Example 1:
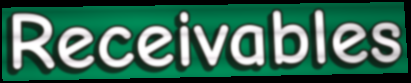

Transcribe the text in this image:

Receivables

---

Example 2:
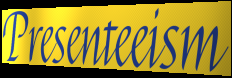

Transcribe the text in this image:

Presenteeism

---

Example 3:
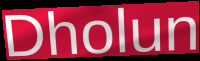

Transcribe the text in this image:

Dholun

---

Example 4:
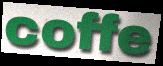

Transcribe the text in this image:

coffe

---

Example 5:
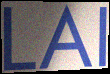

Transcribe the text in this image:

LAI